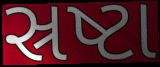
સ્રષ્ટા